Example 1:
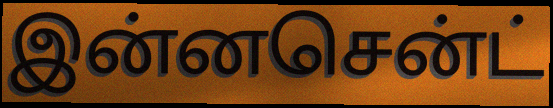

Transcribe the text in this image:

இன்னசென்ட்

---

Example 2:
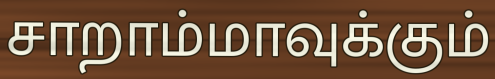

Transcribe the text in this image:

சாறாம்மாவுக்கும்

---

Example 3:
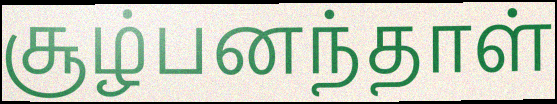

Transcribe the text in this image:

சூழ்பனந்தாள்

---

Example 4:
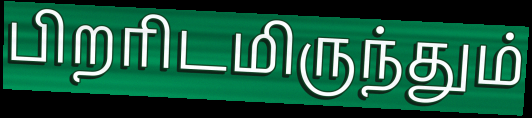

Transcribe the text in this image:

பிறரிடமிருந்தும்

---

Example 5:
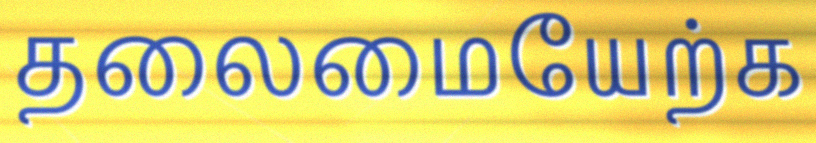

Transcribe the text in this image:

தலைமையேற்க